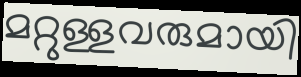
മറ്റുള്ളവരുമായി